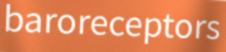
baroreceptors